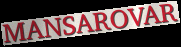
MANSAROVAR